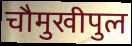
चौमुखीपुल